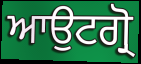
ਆਉਟਗ੍ਰੋ